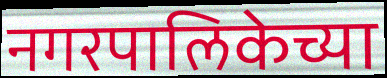
नगरपालिकेच्या